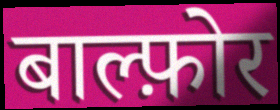
बाल्फ़ोर